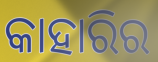
କାହାରିର